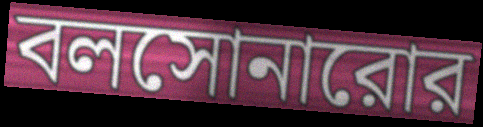
বলসোনারোর